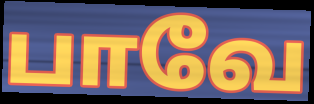
பாவே